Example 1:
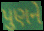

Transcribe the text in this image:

પુણને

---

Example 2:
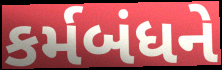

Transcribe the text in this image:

કર્મબંધને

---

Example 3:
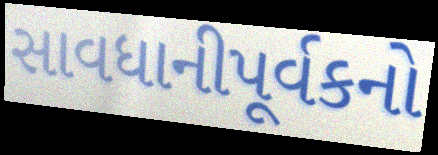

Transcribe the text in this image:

સાવધાનીપૂર્વકનો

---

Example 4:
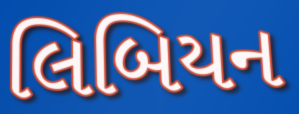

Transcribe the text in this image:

લિબિયન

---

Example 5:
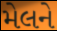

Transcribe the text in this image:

મેલને